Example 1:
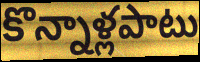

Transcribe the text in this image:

కొన్నాళ్లపాటు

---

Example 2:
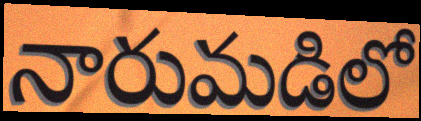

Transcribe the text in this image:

నారుమడిలో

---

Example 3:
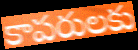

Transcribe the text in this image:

కాపరులకు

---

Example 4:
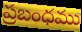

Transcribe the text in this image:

ప్రబంధము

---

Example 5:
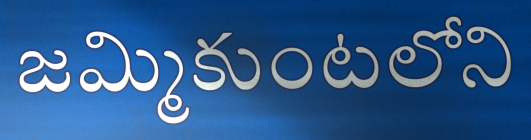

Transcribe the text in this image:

జమ్మికుంటలోని